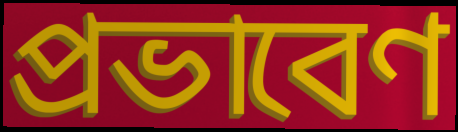
প্রভাবেণ